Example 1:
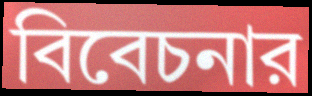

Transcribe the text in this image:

বিবেচনার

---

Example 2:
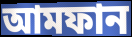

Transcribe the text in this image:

আমফান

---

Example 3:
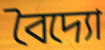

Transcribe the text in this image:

বৈদ্যো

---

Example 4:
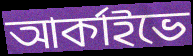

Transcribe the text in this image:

আর্কাইভে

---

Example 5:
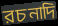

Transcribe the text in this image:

রচনাদি